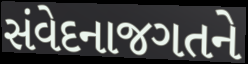
સંવેદનાજગતને